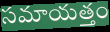
సమాయత్తం